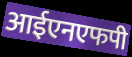
आईएनएफपी